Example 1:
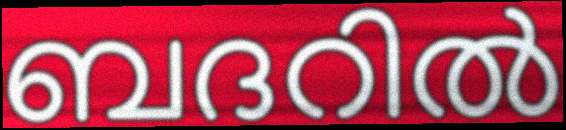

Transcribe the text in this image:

ബദറിൽ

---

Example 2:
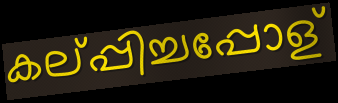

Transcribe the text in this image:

കല്പ്പിച്ചപ്പോള്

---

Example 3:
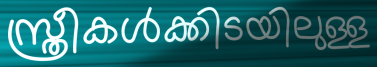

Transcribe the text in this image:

സ്ത്രീകൾക്കിടയിലുള്ള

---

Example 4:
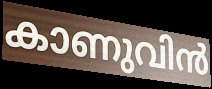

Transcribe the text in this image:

കാണുവിൻ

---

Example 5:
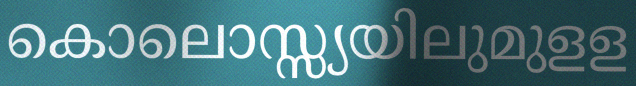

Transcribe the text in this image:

കൊലൊസ്സ്യയിലുമുളള